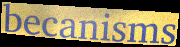
becanisms